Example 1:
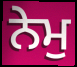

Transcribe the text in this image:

ਨੇਮੁ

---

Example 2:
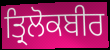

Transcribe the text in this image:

ਤ੍ਰਿਲੋਕਬੀਰ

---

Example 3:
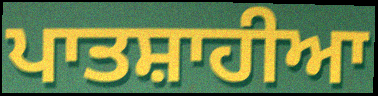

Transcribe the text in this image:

ਪਾਤਸ਼ਾਹੀਆ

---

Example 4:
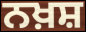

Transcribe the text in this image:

ਨਖ਼ਸ਼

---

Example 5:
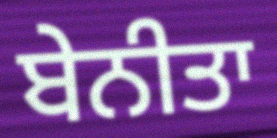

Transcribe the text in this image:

ਬੇਨੀਤਾ